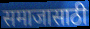
समाजासाठी